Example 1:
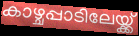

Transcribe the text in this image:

കാഴ്ചപ്പാടിലേയ്ക്ക്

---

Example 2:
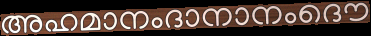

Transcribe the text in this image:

അഹമാനംദാനാനംദൌ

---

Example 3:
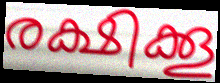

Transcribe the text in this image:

രക്ഷിക്കൂ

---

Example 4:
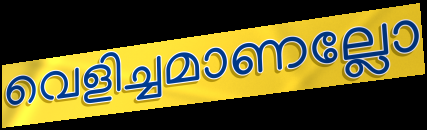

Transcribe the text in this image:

വെളിച്ചമാണല്ലോ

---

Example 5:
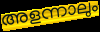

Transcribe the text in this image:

അളന്നാലും